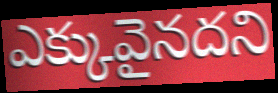
ఎక్కువైనదని